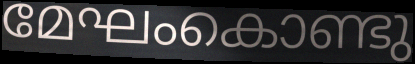
മേഘംകൊണ്ടു